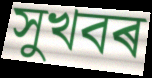
সুখবৰ